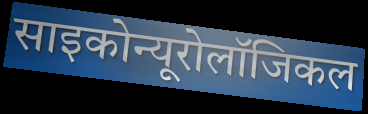
साइकोन्यूरोलॉजिकल